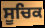
ਸੂਚਿਕ